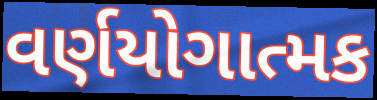
વર્ણયોગાત્મક